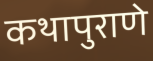
कथापुराणे